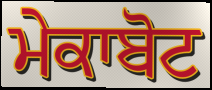
ਮੇਕਾਬੋਟ